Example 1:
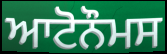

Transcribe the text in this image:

ਆਟੋਨੌਮਸ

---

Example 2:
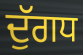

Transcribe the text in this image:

ਦੁੱਗਧ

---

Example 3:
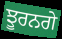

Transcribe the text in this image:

ਝੂਰਨਗੇ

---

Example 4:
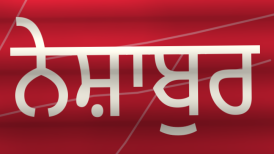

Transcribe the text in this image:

ਨੇਸ਼ਾਬੁਰ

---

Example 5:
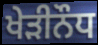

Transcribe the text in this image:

ਖੇੜੀਨੌਧ